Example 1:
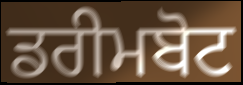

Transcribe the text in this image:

ਡਰੀਮਬੋਟ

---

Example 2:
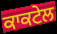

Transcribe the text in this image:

ਕਾਕਟੇਲ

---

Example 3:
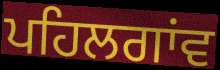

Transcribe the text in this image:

ਪਹਿਲਗਾਂਵ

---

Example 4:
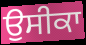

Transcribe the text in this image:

ਉਸੀਕਾ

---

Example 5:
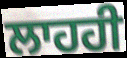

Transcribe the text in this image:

ਲਾਹਹੀ